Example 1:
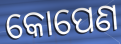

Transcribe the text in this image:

କୋପେଣ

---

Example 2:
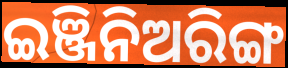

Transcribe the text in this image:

ଇଞ୍ଜିନିଅରିଙ୍ଗ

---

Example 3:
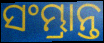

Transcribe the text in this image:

ସଂମ୍ଭ୍ରାନ୍ତ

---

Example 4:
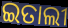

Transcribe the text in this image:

ଇତାଲୀ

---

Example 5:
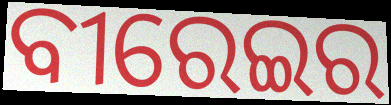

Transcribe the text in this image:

ବୀରେଇର